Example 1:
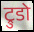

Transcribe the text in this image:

ट्रुडो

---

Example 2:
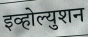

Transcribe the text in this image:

इव्होल्युशन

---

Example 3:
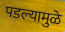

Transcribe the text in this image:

पडल्यामुळे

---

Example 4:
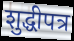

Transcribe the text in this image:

शुद्धीपत्र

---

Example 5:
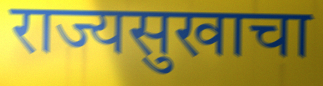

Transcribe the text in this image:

राज्यसुखाचा